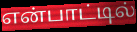
என்பாட்டில்